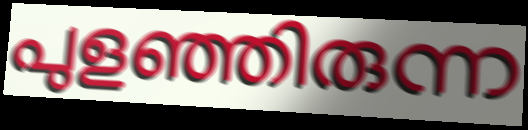
പുളഞ്ഞിരുന്ന